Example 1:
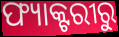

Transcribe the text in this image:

ଫ୍ୟାକ୍ଟରୀରୁ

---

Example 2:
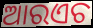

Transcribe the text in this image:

ଆରଏଚ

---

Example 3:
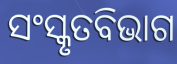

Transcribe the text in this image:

ସଂସ୍କୃତବିଭାଗ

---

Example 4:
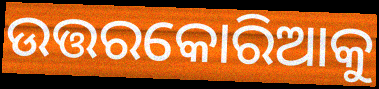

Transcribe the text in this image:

ଉତ୍ତରକୋରିଆକୁ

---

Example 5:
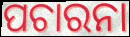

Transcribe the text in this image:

ପଚାରନା